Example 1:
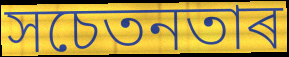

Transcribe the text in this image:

সচেতনতাৰ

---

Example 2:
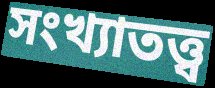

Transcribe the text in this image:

সংখ্যাতত্ত্ব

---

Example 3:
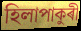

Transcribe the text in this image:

হিলাপাকুৰী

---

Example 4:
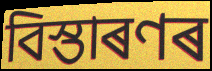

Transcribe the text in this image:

বিস্তাৰণৰ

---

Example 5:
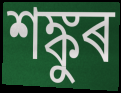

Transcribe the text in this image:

শঙ্কুৰ